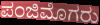
ಪಂಜಿಮೊಗರು